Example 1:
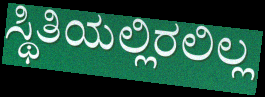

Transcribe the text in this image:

ಸ್ಥಿತಿಯಲ್ಲಿರಲಿಲ್ಲ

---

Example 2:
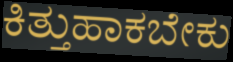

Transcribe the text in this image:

ಕಿತ್ತುಹಾಕಬೇಕು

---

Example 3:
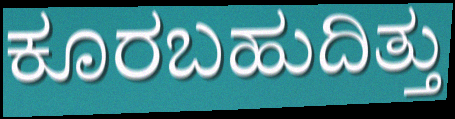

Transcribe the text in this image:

ಕೂರಬಹುದಿತ್ತು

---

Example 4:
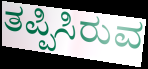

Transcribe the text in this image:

ತಪ್ಪಿಸಿರುವ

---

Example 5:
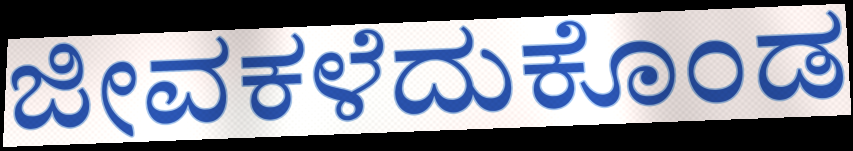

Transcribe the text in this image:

ಜೀವಕಳೆದುಕೊಂಡ